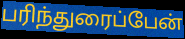
பரிந்துரைப்பேன்